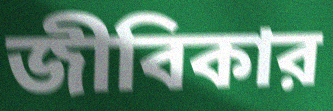
জীবিকার